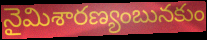
నైమిశారణ్యంబునకుం